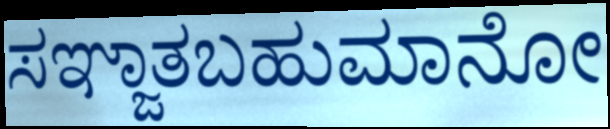
ಸಞ್ಜಾತಬಹುಮಾನೋ